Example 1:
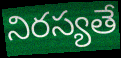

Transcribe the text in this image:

నిరస్యతే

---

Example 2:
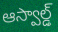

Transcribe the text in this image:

ఆస్వాల్డ్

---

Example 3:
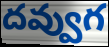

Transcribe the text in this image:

దవ్వుగ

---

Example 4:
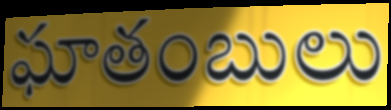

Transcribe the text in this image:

ఘాతంబులు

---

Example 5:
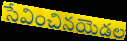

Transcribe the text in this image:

సేవించినయెడల